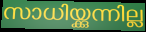
സാധിയ്ക്കുന്നില്ല